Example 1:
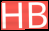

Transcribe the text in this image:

HB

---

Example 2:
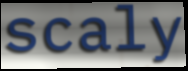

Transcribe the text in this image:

scaly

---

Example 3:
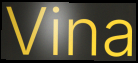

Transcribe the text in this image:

Vina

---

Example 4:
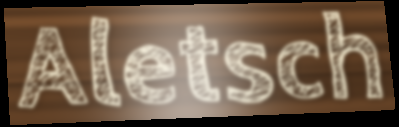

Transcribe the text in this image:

Aletsch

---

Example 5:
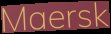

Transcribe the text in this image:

Maersk